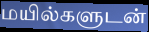
மயில்களுடன்